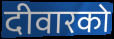
दीवारको